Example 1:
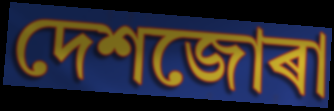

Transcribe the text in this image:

দেশজোৰা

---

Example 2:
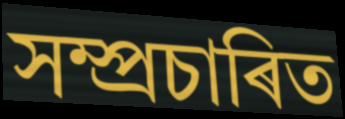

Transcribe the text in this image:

সম্প্ৰচাৰিত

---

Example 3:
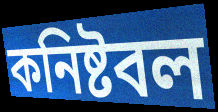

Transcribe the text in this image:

কনিষ্টবল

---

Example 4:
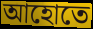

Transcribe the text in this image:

আহোতে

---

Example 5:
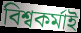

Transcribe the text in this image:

বিশ্বকৰ্মাই